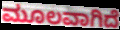
ಮೂಲವಾಗಿದೆ